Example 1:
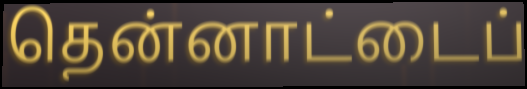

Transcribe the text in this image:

தென்னாட்டைப்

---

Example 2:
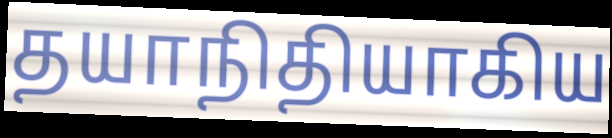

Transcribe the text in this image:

தயாநிதியாகிய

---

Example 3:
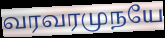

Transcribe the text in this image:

வரவரமுநயே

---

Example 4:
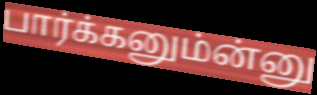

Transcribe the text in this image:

பார்க்கனும்ன்னு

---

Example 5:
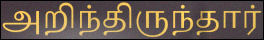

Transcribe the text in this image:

அறிந்திருந்தார்